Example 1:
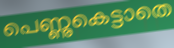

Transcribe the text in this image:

പെണ്ണുകെട്ടാതെ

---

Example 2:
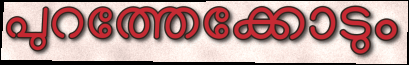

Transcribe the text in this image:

പുറത്തേക്കോടും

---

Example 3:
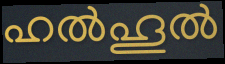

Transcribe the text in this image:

ഹൽഹൂൽ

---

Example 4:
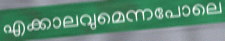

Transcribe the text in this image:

എക്കാലവുമെന്നപോലെ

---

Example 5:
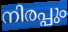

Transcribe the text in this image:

നിരപ്പും